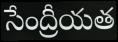
సేంద్రీయత